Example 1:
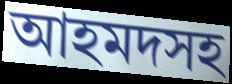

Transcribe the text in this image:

আহমদসহ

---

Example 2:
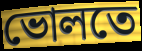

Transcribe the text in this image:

ভোলতে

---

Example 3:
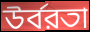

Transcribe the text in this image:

উর্বরতা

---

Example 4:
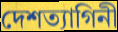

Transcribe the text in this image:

দেশত্যাগিনী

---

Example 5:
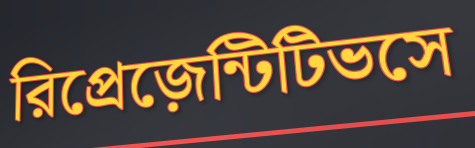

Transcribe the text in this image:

রিপ্রেজ়েন্টিটিভসে